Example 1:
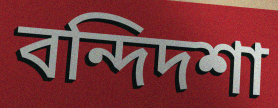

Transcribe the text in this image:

বন্দিদশা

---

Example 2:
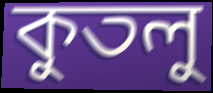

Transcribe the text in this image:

কুতলু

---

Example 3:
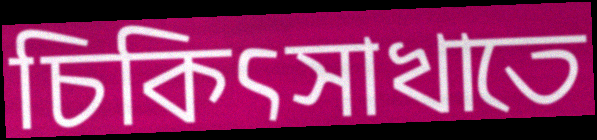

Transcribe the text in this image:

চিকিৎসাখাতে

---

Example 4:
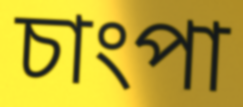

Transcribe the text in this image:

চাংপা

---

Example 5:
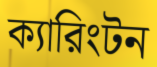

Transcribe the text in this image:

ক্যারিংটন